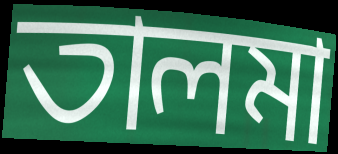
তালমা